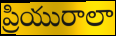
ప్రియురాలా